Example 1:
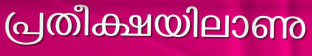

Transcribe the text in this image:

പ്രതീക്ഷയിലാണു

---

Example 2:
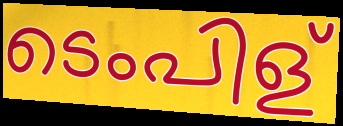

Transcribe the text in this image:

ടെംപിള്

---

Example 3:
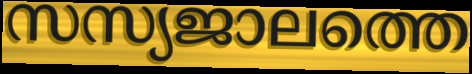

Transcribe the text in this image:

സസ്യജാലത്തെ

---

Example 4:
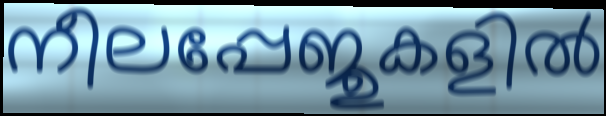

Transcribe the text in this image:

നീലപ്പേജുകളിൽ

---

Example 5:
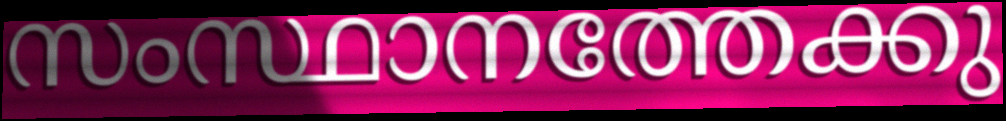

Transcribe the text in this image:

സംസ്ഥാനത്തേക്കു